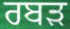
ਰਬੜ